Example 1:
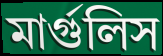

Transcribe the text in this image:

মার্গুলিস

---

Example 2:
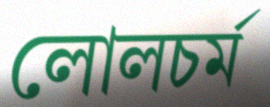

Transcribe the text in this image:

লোলচর্ম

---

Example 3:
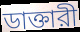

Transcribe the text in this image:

ডাক্তারী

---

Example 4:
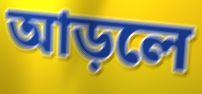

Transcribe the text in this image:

আড়লে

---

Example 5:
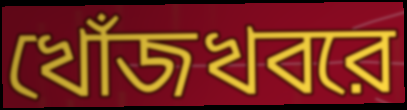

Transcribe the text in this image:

খোঁজখবরে